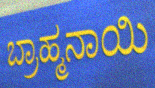
ಬ್ರಾಹ್ಮನಾಯಿ